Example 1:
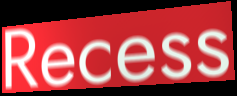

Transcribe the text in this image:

Recess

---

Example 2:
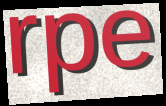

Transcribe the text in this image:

rpe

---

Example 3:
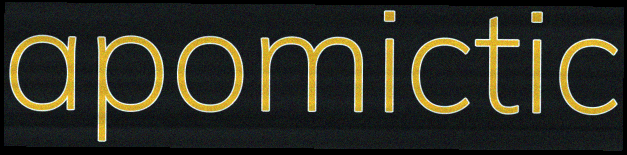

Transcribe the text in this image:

apomictic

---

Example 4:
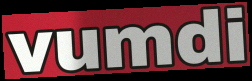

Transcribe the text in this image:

vumdi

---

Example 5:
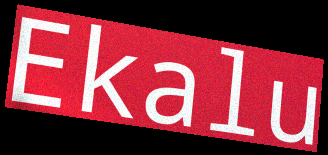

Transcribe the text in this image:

Ekalu